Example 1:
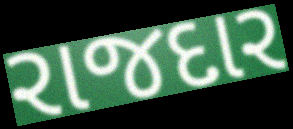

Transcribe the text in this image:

રાજદાર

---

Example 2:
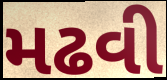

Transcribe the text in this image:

મઢવી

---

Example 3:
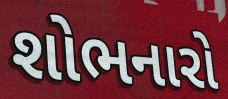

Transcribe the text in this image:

શોભનારો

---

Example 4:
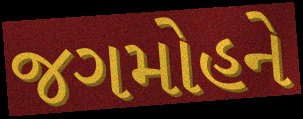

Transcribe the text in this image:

જગમોહને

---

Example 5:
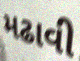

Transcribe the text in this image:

મઢાવી